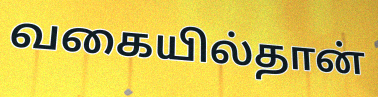
வகையில்தான்